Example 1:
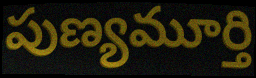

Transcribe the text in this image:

పుణ్యమూర్తి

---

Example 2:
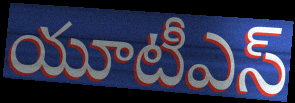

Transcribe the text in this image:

యూటీఎస్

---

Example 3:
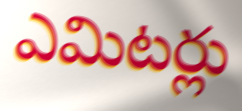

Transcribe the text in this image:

ఎమిటర్లు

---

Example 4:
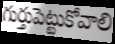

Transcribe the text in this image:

గుర్తుపెట్టుకోవాలి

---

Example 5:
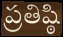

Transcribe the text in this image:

ప్రతిష్ఠి